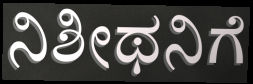
ನಿಶೀಥನಿಗೆ